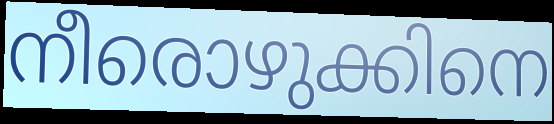
നീരൊഴുക്കിനെ